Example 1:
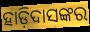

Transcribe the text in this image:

ହାଡ଼ିଦାସଙ୍କର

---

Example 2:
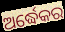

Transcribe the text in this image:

ଅର୍ଦ୍ଧେକର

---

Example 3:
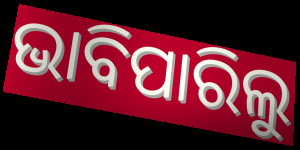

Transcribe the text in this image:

ଭାବିପାରିଲୁ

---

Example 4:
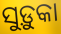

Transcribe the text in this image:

ସୁଡ଼ୁକା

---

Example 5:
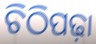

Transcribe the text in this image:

ଚିଠିପଢ଼ା